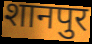
शानपुर